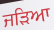
ਜੜਿਆ